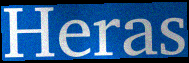
Heras